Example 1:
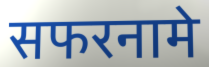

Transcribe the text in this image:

सफरनामे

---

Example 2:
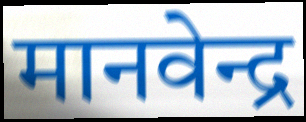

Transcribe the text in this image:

मानवेन्द्र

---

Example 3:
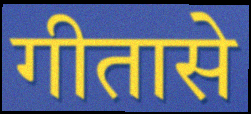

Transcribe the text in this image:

गीतासे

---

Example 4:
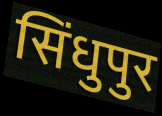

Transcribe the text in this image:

सिंधुपुर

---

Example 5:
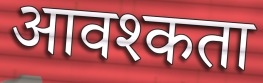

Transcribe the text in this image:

आवश्कता